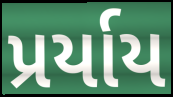
પ્રર્યાય